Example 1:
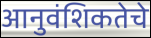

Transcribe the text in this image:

आनुवंशिकतेचे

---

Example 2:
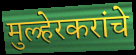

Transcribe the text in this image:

मुल्हेरकरांचे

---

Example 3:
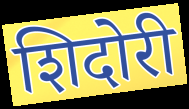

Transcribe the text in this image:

शिदोरी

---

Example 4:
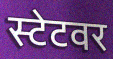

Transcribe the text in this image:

स्टेटवर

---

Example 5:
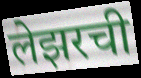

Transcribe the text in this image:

लेझरची